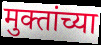
मुक्तांच्या